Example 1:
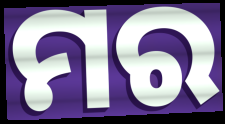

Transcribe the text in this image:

ମର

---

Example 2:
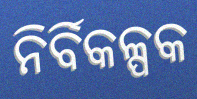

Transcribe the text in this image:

ନିର୍ବିକଳ୍ପକ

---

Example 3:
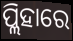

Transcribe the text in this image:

ପ୍ଲିହାରେ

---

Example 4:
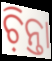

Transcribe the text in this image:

ଚ଼ିନ୍ତା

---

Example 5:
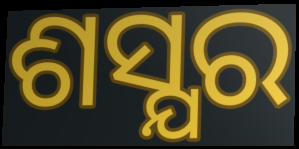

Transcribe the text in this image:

ଶସ୍ଯର